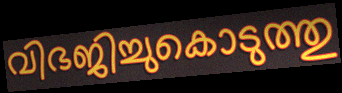
വിഭജിച്ചുകൊടുത്തു